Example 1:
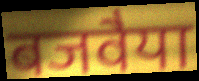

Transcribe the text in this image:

बजवैया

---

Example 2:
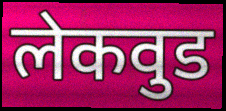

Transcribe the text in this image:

लेकवुड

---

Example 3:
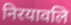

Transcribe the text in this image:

निरयावलि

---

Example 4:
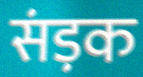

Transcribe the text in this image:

संड़क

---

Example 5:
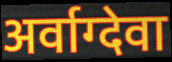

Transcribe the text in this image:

अर्वाग्देवा